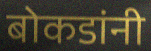
बोकडांनी